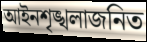
আইনশৃঙ্খলাজনিত